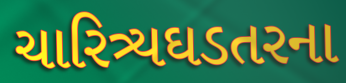
ચારિત્ર્યઘડતરના